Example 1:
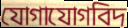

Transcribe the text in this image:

যোগাযোগবিদ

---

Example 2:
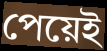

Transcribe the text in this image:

পেয়েই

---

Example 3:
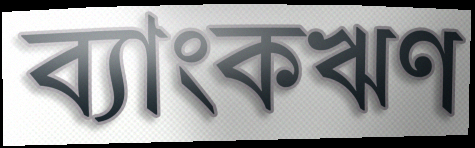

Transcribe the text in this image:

ব্যাংকঋণ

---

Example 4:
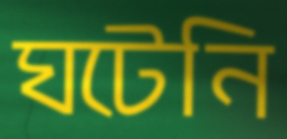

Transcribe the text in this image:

ঘটেনি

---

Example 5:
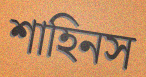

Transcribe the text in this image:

শাহিনস